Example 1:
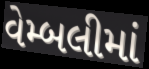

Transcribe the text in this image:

વેમ્બલીમાં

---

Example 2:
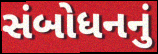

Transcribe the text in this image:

સંબોધનનું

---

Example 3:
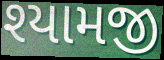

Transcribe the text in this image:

શ્યામજી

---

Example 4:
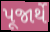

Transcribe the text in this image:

પૂજાર્થે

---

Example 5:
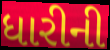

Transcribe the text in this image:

ધારીની